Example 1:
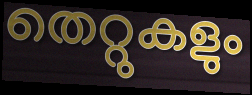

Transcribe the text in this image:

തെറ്റുകളും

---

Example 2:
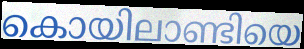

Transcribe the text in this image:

കൊയിലാണ്ടിയെ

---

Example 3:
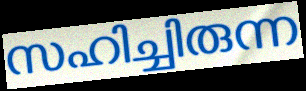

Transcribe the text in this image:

സഹിച്ചിരുന്ന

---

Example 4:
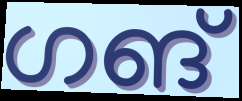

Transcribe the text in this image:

ഗങ്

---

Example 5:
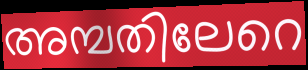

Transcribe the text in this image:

അമ്പതിലേറെ